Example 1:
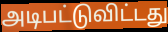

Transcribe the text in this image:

அடிபட்டுவிட்டது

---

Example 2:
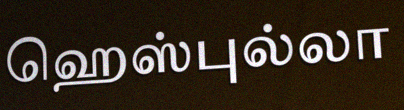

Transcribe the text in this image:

ஹெஸ்புல்லா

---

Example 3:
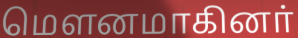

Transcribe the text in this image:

மௌனமாகினர்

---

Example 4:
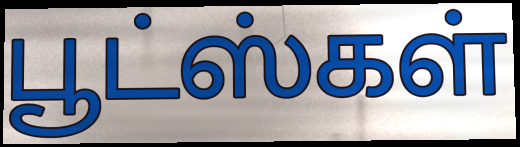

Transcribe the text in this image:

பூட்ஸ்கள்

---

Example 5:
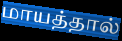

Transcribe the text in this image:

மாயத்தால்